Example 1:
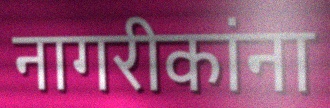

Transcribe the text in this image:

नागरीकांना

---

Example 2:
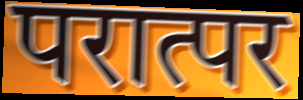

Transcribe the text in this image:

परात्पर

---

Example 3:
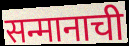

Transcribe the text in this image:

सन्मानाची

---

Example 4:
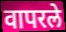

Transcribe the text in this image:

वापरले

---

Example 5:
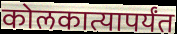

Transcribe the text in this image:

कोलकात्यापर्यंत